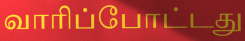
வாரிப்போட்டது